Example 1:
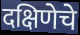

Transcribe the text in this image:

दक्षिणेचे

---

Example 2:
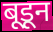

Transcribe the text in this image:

बूडून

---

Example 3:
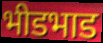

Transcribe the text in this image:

भीडभाड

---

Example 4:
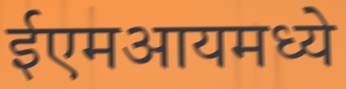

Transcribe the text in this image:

ईएमआयमध्ये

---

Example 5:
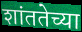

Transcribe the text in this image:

शांततेच्या